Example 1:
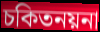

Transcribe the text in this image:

চকিতনয়না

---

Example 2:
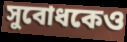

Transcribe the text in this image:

সুবোধকেও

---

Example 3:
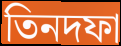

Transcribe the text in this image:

তিনদফা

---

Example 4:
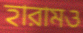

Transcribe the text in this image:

হারামও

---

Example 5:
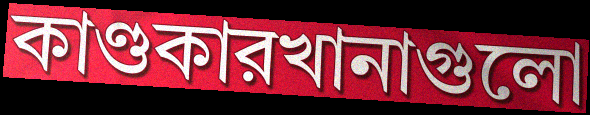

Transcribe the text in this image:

কাণ্ডকারখানাগুলো